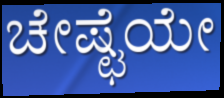
ಚೇಷ್ಟೆಯೇ